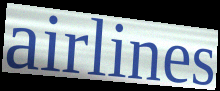
airlines